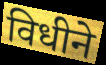
विधीने